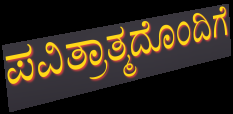
ಪವಿತ್ರಾತ್ಮದೊಂದಿಗೆ